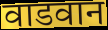
वाडवान